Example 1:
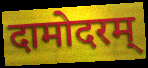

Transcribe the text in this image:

दामोदरम्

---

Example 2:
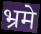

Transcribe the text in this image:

भ्रमे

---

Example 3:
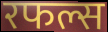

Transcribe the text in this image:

रफल्स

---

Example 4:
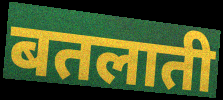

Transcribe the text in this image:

बतलाती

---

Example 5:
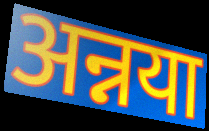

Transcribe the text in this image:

अन्नया